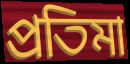
প্রতিমা